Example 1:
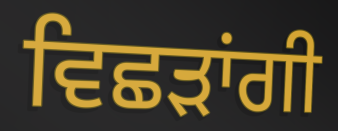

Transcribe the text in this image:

ਵਿਛੜਾਂਗੀ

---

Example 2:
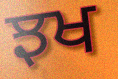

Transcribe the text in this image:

ਝਖ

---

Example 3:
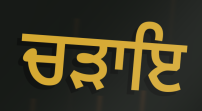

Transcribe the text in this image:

ਚੜਾਇ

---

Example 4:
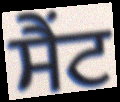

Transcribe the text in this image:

ਸੈਂਟ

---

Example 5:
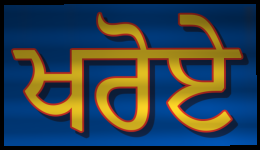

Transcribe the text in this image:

ਖਰੋਏ